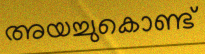
അയച്ചുകൊണ്ട്